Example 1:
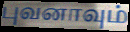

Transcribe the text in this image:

புவனாவும்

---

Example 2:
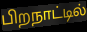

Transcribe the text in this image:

பிறநாட்டில்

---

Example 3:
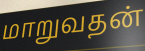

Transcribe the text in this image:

மாறுவதன்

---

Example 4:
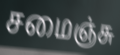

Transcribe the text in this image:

சமைஞ்சு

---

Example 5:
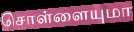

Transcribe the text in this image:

சொள்ளையுமா